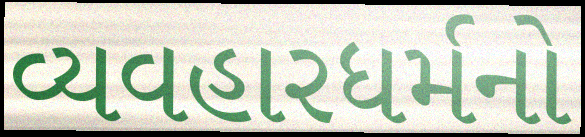
વ્યવહારધર્મનો